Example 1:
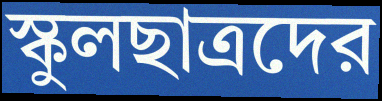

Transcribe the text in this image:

স্কুলছাত্রদের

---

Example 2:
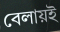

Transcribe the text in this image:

বেলায়ই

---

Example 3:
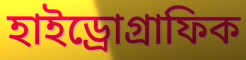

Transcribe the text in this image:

হাইড্রোগ্রাফিক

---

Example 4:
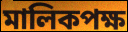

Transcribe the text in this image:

মালিকপক্ষ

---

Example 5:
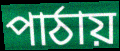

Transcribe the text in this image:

পাঠায়